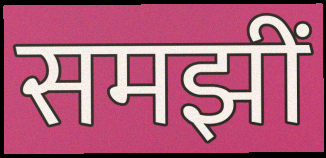
समझीं